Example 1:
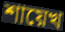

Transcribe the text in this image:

শায়েখ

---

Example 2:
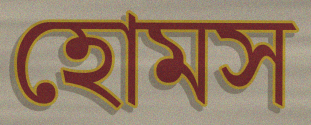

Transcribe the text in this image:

হোমস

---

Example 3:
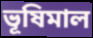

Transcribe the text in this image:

ভূষিমাল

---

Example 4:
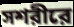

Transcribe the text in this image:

সশরীরে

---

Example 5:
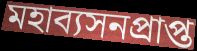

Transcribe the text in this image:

মহাব্যসনপ্রাপ্ত